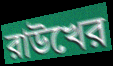
রাউখের